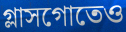
গ্লাসগোতেও